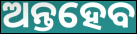
ଅନ୍ତହେବ